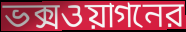
ভক্সওয়াগনের